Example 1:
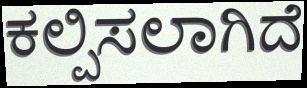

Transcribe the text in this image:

ಕಲ್ಪಿಸಲಾಗಿದೆ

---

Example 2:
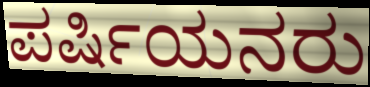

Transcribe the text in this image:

ಪರ್ಷಿಯನರು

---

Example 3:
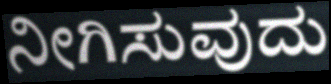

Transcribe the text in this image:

ನೀಗಿಸುವುದು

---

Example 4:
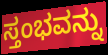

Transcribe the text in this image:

ಸ್ತಂಭವನ್ನು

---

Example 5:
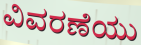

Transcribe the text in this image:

ವಿವರಣೆಯು